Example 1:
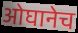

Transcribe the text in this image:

ओघानेच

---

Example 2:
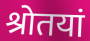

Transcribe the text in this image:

श्रोतयां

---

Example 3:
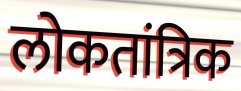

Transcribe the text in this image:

लोकतांत्रिक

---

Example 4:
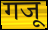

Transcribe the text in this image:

गजू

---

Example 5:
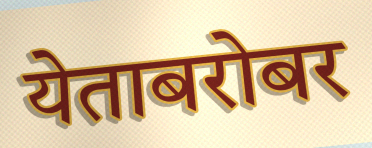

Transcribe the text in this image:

येताबरोबर